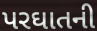
પરઘાતની